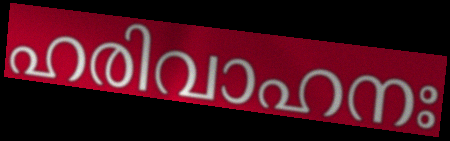
ഹരിവാഹനഃ